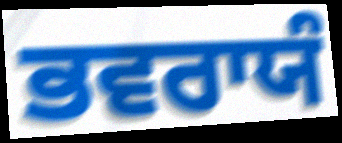
ਭਵਰਾਯੰ